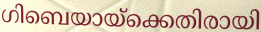
ഗിബെയായ്ക്കെതിരായി